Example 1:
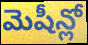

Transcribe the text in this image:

మెషీన్లో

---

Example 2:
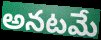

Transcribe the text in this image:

అనటమే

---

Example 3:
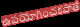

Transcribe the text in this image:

ఉపయోగించకపోతే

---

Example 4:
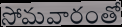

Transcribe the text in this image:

సోమవారంతో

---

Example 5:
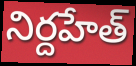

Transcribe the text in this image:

నిర్దహేత్